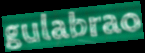
gulabrao